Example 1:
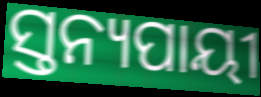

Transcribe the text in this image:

ସ୍ତନ୍ୟପାୟୀ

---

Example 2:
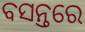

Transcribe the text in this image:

ବସନ୍ତରେ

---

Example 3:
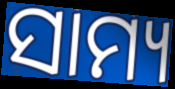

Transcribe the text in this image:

ସାମ୍ୟ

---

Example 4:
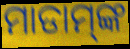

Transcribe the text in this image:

ମାଡାମ୍‌ଙ୍କ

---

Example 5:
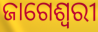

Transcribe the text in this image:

ଜାଗେଶ୍ୱରୀ